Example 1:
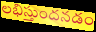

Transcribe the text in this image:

లభిస్తుందనడం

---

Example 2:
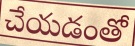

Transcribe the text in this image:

చేయడంతో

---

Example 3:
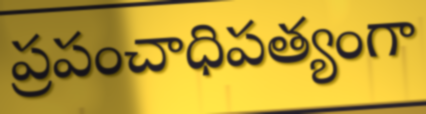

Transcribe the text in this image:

ప్రపంచాధిపత్యంగా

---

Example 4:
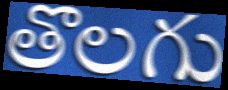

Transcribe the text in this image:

తొలగు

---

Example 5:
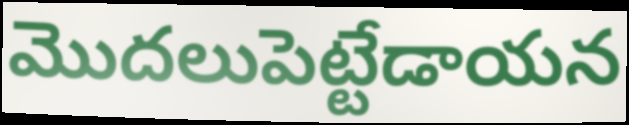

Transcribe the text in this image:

మొదలుపెట్టేడాయన